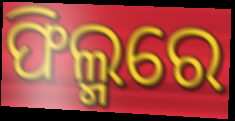
ଫିଲ୍ମରେ